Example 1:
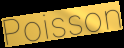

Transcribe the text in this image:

Poisson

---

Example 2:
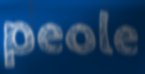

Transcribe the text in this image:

peole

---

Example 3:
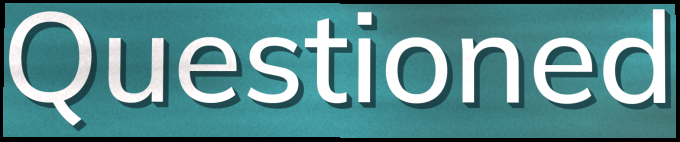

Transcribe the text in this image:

Questioned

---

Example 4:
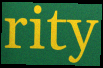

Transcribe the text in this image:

rity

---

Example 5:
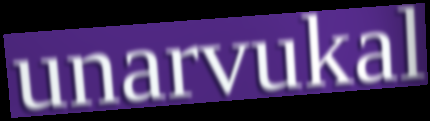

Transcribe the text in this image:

unarvukal